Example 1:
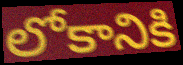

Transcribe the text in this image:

లోకానికి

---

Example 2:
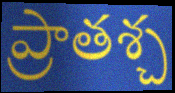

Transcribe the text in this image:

ప్రాతశ్చ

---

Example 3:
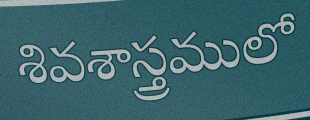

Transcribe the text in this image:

శివశాస్త్రములో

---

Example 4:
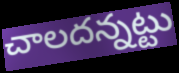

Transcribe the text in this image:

చాలదన్నట్టు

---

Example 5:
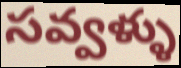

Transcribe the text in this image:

సవ్వళ్ళు